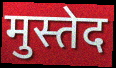
मुस्तेद